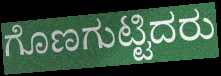
ಗೊಣಗುಟ್ಟಿದರು